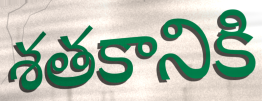
శతకానికి